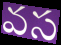
వస